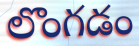
లొంగడం